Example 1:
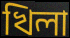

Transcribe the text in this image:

খিলা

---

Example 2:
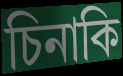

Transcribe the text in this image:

চিনাকি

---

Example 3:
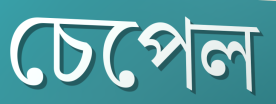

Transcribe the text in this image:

চেপেল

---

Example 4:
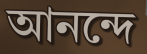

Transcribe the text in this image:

আনন্দে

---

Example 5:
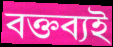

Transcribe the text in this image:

বক্তব্যই